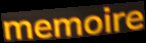
memoire